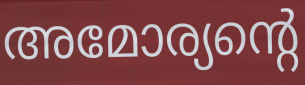
അമോര്യന്റെ